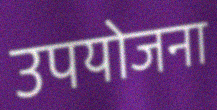
उपयोजना